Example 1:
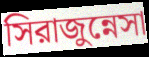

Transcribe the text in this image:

সিরাজুন্নেসা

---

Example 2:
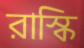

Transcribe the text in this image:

রাস্কি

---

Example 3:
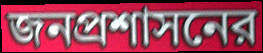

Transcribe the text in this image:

জনপ্রশাসনের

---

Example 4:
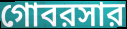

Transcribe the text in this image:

গোবরসার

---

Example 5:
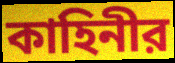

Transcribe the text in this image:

কাহিনীর